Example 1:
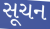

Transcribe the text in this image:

સૂચન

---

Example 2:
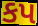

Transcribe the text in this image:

કપ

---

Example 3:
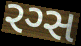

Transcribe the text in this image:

રગ્સ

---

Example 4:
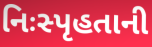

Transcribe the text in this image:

નિઃસ્પૃહતાની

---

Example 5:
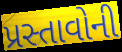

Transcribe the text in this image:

પ્રસ્તાવોની